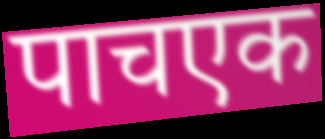
पाचएक